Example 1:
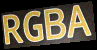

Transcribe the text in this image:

RGBA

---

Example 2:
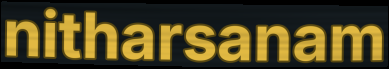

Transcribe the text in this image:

nitharsanam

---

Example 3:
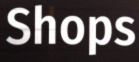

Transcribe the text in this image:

Shops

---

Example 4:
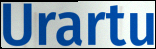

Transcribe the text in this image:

Urartu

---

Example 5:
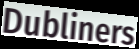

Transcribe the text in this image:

Dubliners